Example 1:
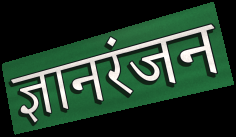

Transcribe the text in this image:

ज्ञानरंजन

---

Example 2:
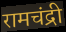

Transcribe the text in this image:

रामचंद्री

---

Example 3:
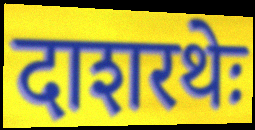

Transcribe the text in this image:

दाशरथेः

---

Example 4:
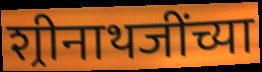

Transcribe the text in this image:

श्रीनाथजींच्या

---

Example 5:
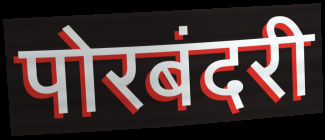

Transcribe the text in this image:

पोरबंदरी